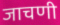
जाचणी